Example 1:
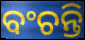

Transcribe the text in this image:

ବଂଚନ୍ତି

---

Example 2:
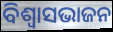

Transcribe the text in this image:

ବିଶ୍ଵାସଭାଜନ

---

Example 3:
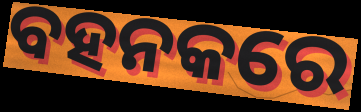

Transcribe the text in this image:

ବହନକରେ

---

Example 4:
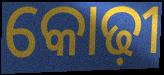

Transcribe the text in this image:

କୋଢ଼ୀ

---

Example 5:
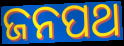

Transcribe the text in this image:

ଜନପଥ